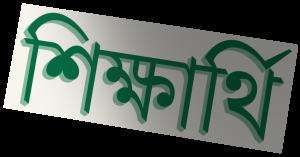
শিক্ষার্থি